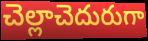
చెల్లాచెదురుగా